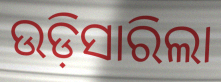
ଉଡ଼ିସାରିଲା